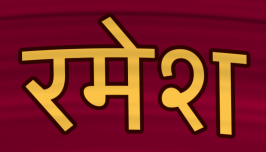
रमेश